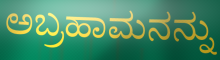
ಅಬ್ರಹಾಮನನ್ನು